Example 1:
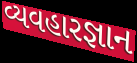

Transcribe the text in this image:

વ્યવહારજ્ઞાન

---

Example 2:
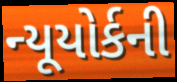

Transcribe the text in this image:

ન્યૂયોર્કની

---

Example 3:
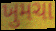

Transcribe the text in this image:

ખુમચા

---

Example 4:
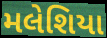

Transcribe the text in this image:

મલેશિયા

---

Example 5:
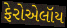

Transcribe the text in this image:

ફેરોએલૉય